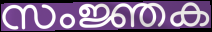
സംജ്ഞക